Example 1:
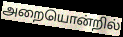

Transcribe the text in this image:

அறையொன்றில்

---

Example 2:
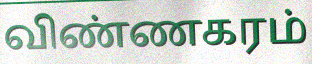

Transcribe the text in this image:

விண்ணகரம்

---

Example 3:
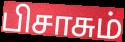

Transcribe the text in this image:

பிசாசும்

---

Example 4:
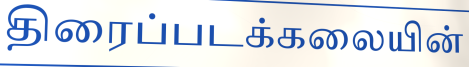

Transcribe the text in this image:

திரைப்படக்கலையின்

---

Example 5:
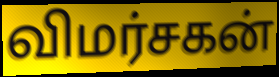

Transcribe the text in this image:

விமர்சகன்